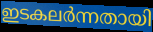
ഇടകലർന്നതായി